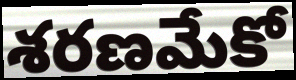
శరణమేకో